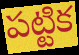
పట్టిక